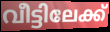
വീട്ടിലേക്ക്